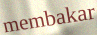
membakar